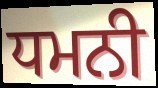
ਧਮਨੀ